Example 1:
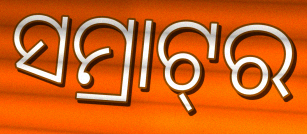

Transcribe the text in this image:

ସମ୍ରାଟ୍‌ର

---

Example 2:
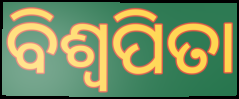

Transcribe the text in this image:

ବିଶ୍ଵପିତା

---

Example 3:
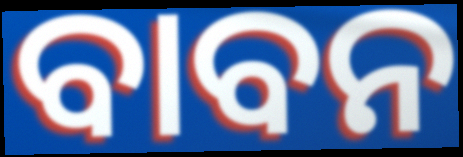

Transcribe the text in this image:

ବାବନ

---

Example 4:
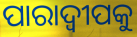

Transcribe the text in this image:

ପାରାଦ୍ୱୀପକୁ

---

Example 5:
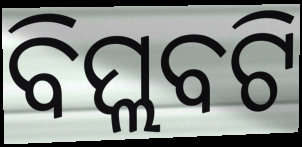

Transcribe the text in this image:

ବିପ୍ଲବଟି